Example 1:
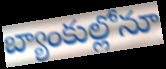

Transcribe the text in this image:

బ్యాంకుల్లోనూ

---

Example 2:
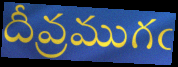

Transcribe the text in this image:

దీవ్రముగఁ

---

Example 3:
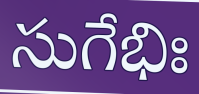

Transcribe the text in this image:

సుగేభిః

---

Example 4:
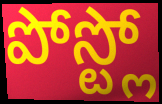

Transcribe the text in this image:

పోస్ట్లో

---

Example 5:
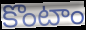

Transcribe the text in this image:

కొంటాం